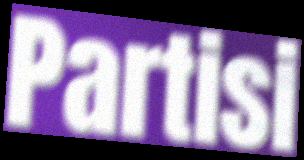
Partisi